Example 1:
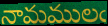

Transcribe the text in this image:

నామములఁ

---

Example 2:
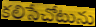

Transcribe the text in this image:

కలిసేచోటును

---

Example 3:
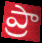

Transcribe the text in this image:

ప్రా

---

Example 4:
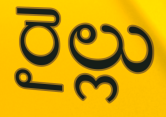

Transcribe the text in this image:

రైల్లు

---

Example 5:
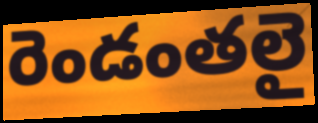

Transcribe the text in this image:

రెండంతలై